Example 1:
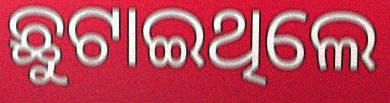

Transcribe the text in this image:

ଛୁଟାଇଥିଲେ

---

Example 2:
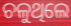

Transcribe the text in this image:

ଚଳୁଥିଲେ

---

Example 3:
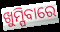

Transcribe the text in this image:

ଖୁମ୍ପିବାରେ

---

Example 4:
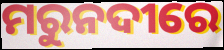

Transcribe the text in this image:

ମରୁନଦୀରେ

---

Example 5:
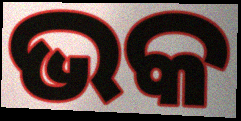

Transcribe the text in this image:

ଭକ